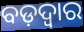
ବଡ଼ଦ୍ୱାର